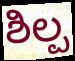
ಶಿಲ್ಪ